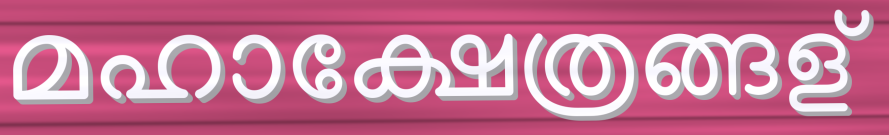
മഹാക്ഷേത്രങ്ങള്